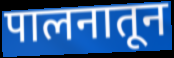
पालनातून